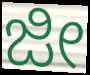
ಜೀ